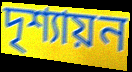
দৃশ্যায়ন